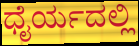
ಧೈರ್ಯದಲ್ಲಿ